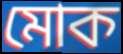
মোক